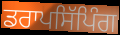
ਡਰਾਪਸਿੱਪਿੰਗ